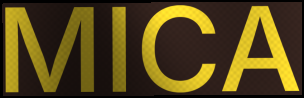
MICA